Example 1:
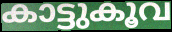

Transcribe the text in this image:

കാട്ടുകൂവ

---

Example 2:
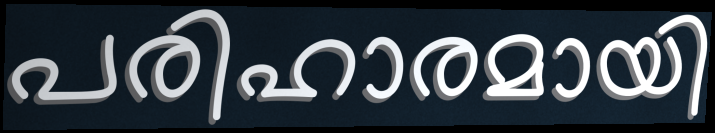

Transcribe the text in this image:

പരിഹാരമായി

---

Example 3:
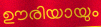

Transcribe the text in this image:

ഊരിയായും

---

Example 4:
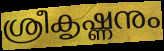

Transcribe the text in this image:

ശ്രീകൃഷ്ണനും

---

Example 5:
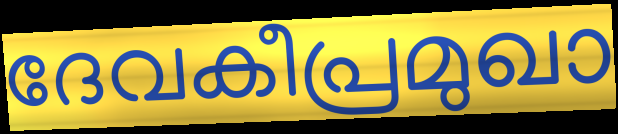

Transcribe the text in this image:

ദേവകീപ്രമുഖാ